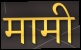
मामी